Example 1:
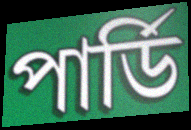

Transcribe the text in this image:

পার্ডি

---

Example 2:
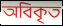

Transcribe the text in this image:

অবিকৃত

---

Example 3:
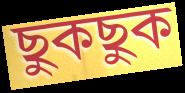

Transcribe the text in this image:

ছুকছুক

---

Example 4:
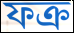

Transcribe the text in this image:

ফক্র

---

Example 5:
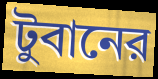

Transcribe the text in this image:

টুবানের